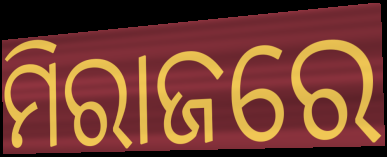
ମିରାଜରେ